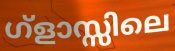
ഗ്ളാസ്സിലെ